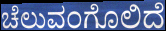
ಚೆಲುವಂಗೊಲಿದೆ